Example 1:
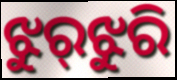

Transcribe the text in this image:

ଝୁର୍‌ଝୁରି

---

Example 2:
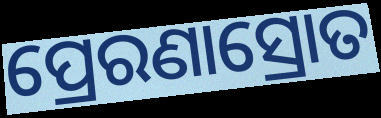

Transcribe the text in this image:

ପ୍ରେରଣାସ୍ରୋତ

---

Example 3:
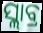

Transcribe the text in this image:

ସ୍ଲାବ୍ର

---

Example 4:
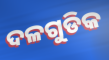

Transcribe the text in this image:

ଦଳଗୁଡିକ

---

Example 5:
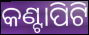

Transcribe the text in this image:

କଣ୍ଟାପିଟି